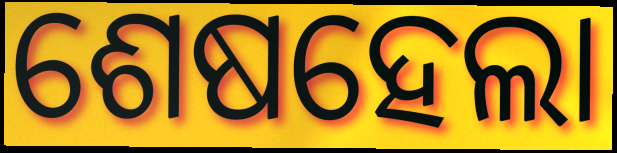
ଶେଷହେଲା